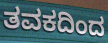
ತವಕದಿಂದ